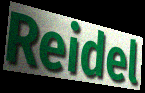
Reidel